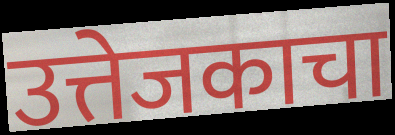
उत्तेजकाचा